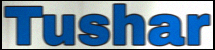
Tushar